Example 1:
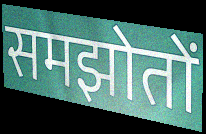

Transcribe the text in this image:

समझोतों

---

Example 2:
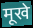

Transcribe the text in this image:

मूखे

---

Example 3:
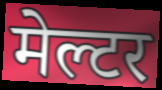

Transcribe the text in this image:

मेल्टर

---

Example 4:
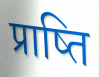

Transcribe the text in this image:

प्राष्ति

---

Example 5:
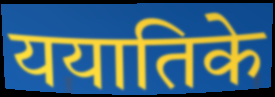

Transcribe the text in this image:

ययातिके